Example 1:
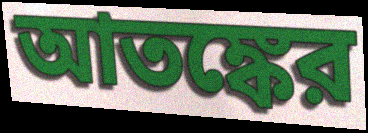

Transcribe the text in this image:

আতঙ্কের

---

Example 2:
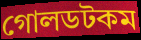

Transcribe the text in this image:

গোলডটকম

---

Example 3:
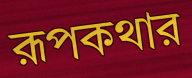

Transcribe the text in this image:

রূপকথার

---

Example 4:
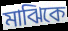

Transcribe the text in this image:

মাঝিকে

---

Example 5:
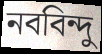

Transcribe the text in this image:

নববিন্দু